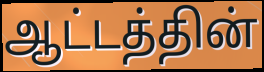
ஆட்டத்தின்